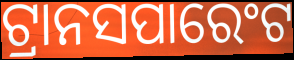
ଟ୍ରାନସପାରେଂଟ